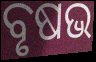
ବୃଷଭ